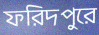
ফরিদপুরে